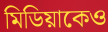
মিডিয়াকেও